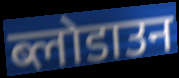
ब्लोडाउन